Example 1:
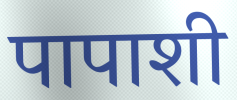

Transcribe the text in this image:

पापाशी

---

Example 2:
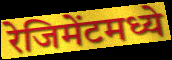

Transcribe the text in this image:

रेजिमेंटमध्ये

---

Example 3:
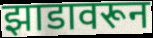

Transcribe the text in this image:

झाडावरून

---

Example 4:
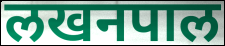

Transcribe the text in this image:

लखनपाल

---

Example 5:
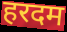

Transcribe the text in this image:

हरदम